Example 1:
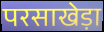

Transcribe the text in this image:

परसाखेड़ा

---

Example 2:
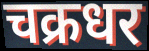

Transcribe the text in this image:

चक्रधर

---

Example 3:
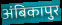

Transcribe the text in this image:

अंबिकापुर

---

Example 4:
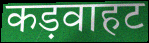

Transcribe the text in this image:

कड़वाहट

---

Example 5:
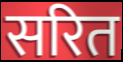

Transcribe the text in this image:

सरित